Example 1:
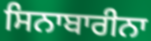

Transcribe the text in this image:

ਸਿਨਾਬਾਰੀਨਾ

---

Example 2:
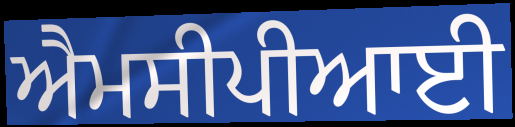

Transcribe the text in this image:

ਐਮਸੀਪੀਆਈ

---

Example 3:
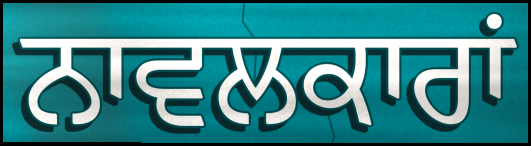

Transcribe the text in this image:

ਨਾਵਲਕਾਰਾਂ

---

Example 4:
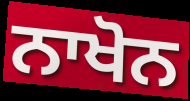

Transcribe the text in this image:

ਨਾਖੋਨ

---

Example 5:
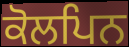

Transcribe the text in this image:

ਕੋਲਪਿਨ